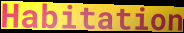
Habitation